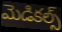
మెడికల్స్